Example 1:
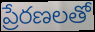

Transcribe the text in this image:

ప్రేరణలతో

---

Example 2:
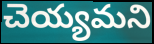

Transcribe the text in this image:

చెయ్యమని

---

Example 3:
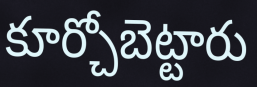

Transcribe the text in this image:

కూర్చోబెట్టారు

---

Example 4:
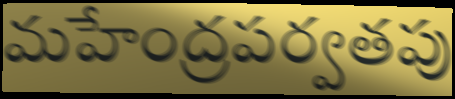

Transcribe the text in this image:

మహేంద్రపర్వతపు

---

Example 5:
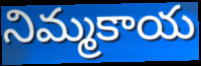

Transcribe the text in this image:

నిమ్మకాయ